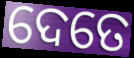
ଦେତେ